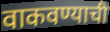
वाकवण्याची